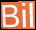
Bil